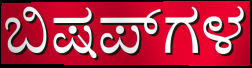
ಬಿಷಪ್‌ಗಳ